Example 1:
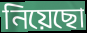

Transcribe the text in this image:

নিয়েছো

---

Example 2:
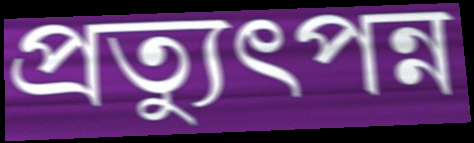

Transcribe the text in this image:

প্রত্যুৎপন্ন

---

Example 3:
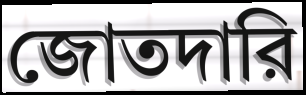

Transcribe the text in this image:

জোতদারি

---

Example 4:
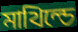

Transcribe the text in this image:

মাথিল্ডে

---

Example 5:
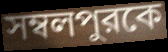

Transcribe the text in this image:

সম্বলপুরকে